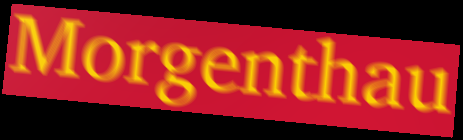
Morgenthau